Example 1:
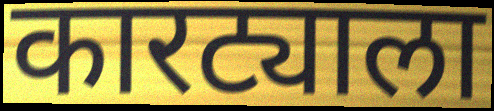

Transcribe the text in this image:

कारट्याला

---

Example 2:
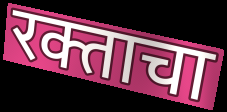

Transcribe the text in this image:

रक्‍ताचा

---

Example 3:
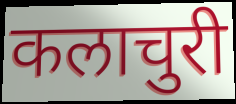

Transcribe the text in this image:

कलाचुरी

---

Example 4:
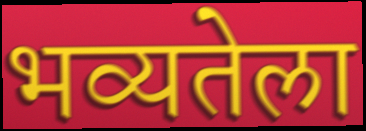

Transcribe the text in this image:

भव्यतेला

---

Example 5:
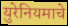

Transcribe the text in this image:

युरेनियमाचे